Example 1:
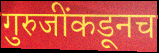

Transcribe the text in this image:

गुरुजींकडूनच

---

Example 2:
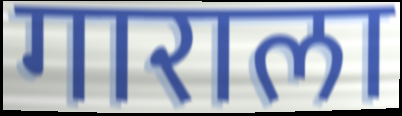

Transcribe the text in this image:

गाराला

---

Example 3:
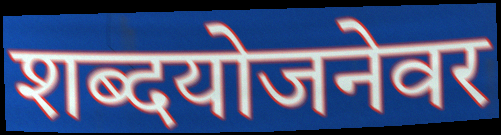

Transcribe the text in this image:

शब्दयोजनेवर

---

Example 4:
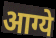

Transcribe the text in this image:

आग्ये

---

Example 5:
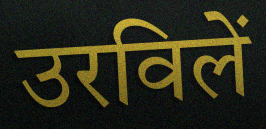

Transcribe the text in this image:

उरविलें